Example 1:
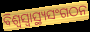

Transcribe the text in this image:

ବିଶ୍ଵସ୍ଵାସ୍ଥ୍ୟସଂଗଠନ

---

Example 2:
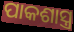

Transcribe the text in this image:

ପାକଶାସ୍ତ୍ର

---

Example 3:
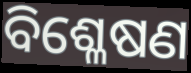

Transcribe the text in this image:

ବିଶ୍ଳେଷଣ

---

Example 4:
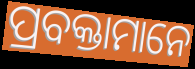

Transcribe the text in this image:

ପ୍ରବକ୍ତାମାନେ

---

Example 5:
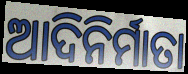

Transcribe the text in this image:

ଆଦିନିର୍ମାତା